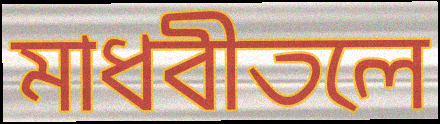
মাধবীতলে